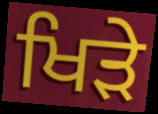
ਖਿੜੇ